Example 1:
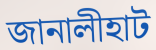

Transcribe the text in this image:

জানালীহাট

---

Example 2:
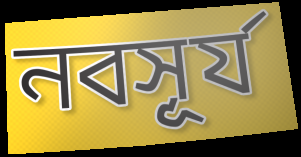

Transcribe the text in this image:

নবসূর্য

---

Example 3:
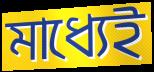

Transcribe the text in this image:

মাধ্যেই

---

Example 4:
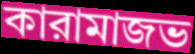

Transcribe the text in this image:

কারামাজভ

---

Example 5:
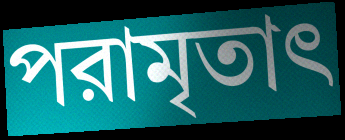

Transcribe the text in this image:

পরামৃতাৎ